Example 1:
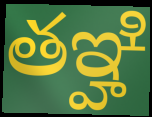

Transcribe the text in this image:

తఞ్హి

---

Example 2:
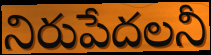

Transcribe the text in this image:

నిరుపేదలనీ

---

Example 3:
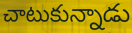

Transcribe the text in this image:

చాటుకున్నాడు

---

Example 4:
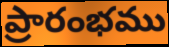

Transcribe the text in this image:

ప్రారంభము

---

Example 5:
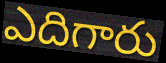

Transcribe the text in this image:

ఎదిగారు